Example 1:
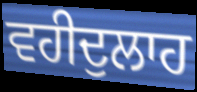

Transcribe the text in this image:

ਵਹੀਦੁਲਾਹ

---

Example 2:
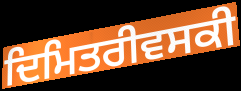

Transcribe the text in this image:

ਦਿਮਿਤਰੀਵਸਕੀ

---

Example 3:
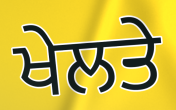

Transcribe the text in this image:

ਖੇਲਤੇ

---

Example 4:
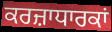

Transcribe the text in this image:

ਕਰਜ਼ਾਧਾਰਕਾਂ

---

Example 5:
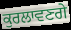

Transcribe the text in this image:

ਕੁਰਲਾਵਣਗੇ